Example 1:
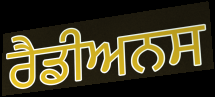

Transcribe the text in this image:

ਰੈਡੀਅਨਸ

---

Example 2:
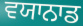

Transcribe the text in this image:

ਵਯਾਨਾਡ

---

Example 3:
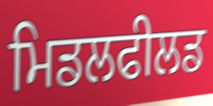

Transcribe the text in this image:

ਮਿਡਲਫੀਲਡ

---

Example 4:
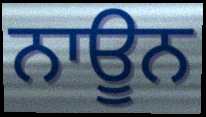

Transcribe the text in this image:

ਨਾਊਨ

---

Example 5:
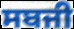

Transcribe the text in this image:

ਸਬਜੀ